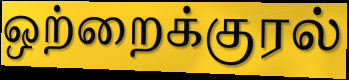
ஒற்றைக்குரல்